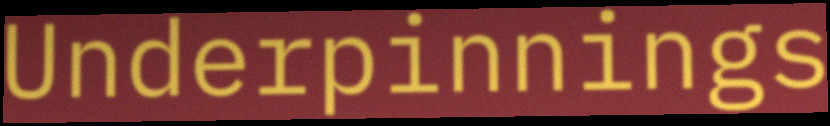
Underpinnings